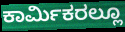
ಕಾರ್ಮಿಕರಲ್ಲೂ